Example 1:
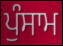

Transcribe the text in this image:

ਪੁੰਸਾਮ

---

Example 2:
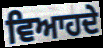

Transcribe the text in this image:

ਵਿਆਹਦੇ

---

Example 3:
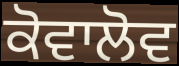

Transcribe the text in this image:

ਕੋਵਾਲੋਵ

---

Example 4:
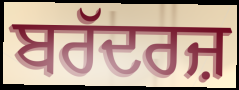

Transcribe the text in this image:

ਬਰੱਦਰਜ਼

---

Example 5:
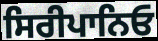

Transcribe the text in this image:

ਸਿਰੀਪਾਨਿਓ